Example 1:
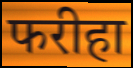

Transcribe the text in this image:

फरीहा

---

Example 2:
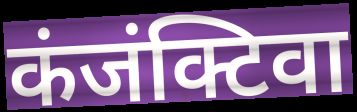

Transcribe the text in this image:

कंजंक्टिवा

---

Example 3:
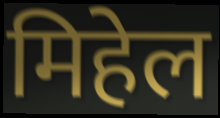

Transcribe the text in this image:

मिहेल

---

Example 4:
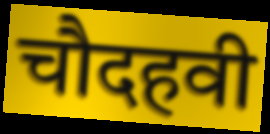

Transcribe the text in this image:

चौदहवी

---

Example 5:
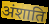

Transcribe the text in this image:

अंशाति